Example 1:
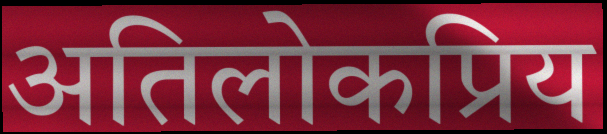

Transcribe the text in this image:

अतिलोकप्रिय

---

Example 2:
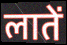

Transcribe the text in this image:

लातें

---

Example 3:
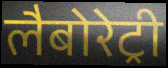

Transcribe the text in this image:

लैबोरेट्री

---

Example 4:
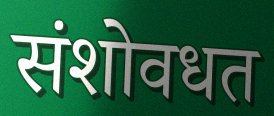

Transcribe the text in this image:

संशोवधत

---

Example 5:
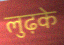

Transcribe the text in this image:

लुढ़के